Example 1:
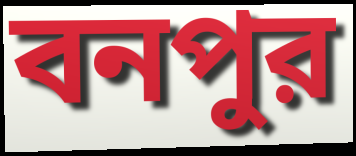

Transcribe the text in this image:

বনপুর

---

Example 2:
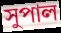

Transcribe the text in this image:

সুপাল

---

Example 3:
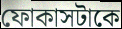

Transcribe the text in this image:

ফোকাসটাকে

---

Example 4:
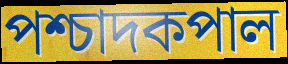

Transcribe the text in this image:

পশ্চাদকপাল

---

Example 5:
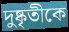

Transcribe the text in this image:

দুষ্কৃতীকে